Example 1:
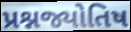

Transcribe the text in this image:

પ્રશ્નજ્યોતિષ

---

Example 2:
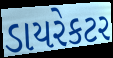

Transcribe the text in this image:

ડાયરેકટર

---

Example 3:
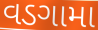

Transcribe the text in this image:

વડગામા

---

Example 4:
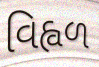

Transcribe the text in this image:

વિહ્વળ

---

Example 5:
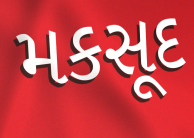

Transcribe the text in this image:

મકસૂદ